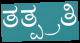
ತತ್ಪ್ರತಿ